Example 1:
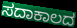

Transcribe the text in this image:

ಸದಾಕಾಲದ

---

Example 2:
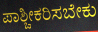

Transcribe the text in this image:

ಪಾಶ್ಚೀಕರಿಸಬೇಕು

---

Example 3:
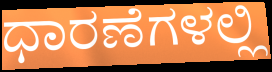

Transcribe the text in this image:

ಧಾರಣೆಗಳಲ್ಲಿ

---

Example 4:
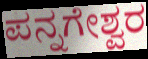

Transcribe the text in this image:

ಪನ್ನಗೇಶ್ವರ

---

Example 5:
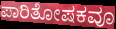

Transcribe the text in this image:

ಪಾರಿತೋಷಕವೂ